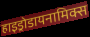
हाइड्रोडायनामिक्स